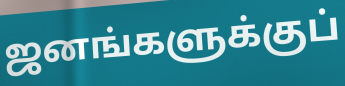
ஜனங்களுக்குப்